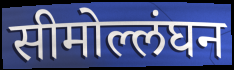
सीमोल्लंघन